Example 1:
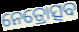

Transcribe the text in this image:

ନେତ୍ରୋତ୍ସବ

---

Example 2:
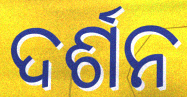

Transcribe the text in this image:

ଦର୍ଶନ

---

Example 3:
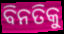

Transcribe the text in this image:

ବିନତିକୁ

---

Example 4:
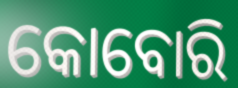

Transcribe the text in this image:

କୋବୋରି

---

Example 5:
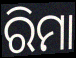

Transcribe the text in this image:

ରିମା